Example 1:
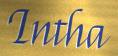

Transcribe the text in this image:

Intha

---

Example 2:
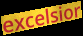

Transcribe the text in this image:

excelsior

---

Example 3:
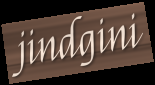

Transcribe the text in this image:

jindgini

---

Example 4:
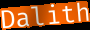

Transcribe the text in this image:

Dalith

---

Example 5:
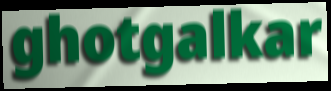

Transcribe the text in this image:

ghotgalkar